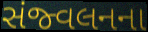
સંજ્વલનના